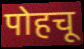
पोहचू